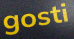
gosti